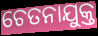
ଚେତନାଯୁକ୍ତ